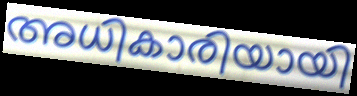
അധികാരിയായി